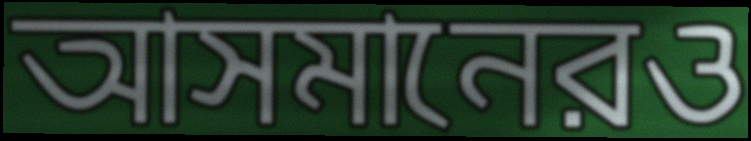
আসমানেরও